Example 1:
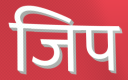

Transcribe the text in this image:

जिप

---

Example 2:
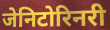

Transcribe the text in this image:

जेनिटोरिनरी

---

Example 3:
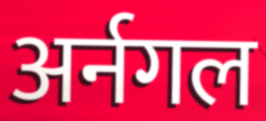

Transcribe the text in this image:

अर्नगल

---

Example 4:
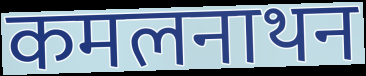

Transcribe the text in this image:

कमलनाथन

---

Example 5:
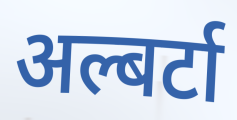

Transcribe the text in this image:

अल्बर्टा